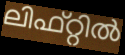
ലിഫ്റ്റിൽ